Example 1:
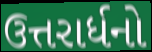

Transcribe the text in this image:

ઉત્તરાર્ધનો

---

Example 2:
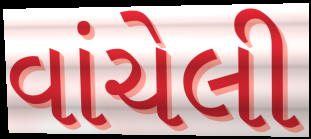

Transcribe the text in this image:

વાંચેલી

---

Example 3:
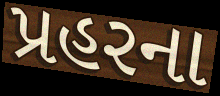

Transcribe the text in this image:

પ્રહરના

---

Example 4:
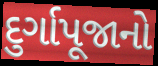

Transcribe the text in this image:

દુર્ગાપૂજાનો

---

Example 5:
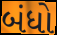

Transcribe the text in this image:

બંધો